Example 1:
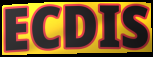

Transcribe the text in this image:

ECDIS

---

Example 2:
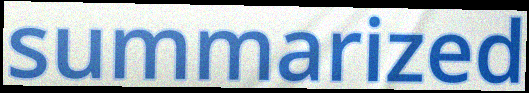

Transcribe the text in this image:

summarized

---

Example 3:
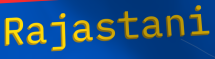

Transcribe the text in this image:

Rajastani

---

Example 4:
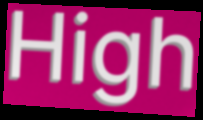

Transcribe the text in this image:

High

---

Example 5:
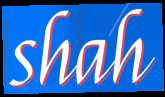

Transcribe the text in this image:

shah